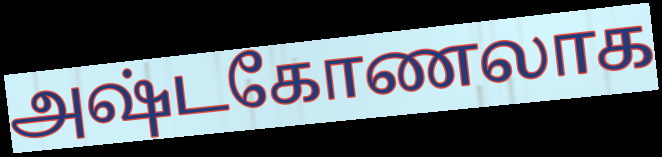
அஷ்டகோணலாக